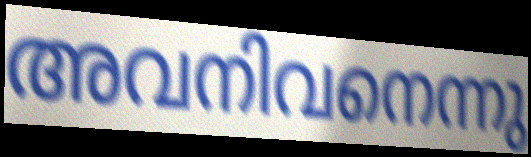
അവനിവനെന്നു